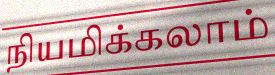
நியமிக்கலாம்